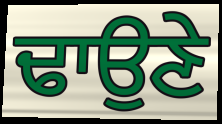
ਢਾਉਣੇ